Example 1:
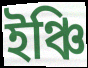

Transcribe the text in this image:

ইঞ্চি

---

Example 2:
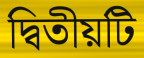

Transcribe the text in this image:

দ্বিতীয়টি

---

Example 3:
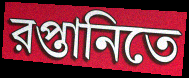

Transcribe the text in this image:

রপ্তানিতে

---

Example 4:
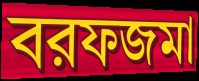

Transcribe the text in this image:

বরফজমা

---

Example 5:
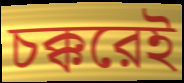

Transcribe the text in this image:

চক্করেই